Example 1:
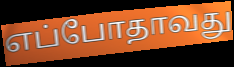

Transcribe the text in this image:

எப்போதாவது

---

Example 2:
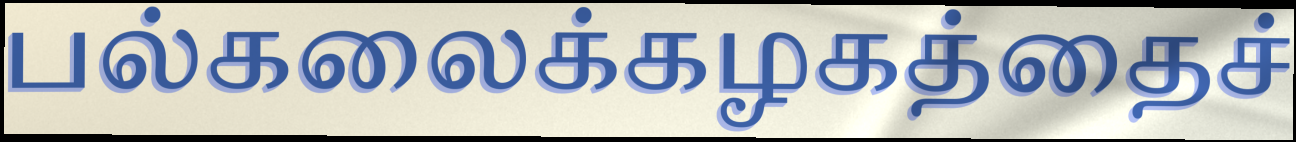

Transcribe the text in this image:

பல்கலைக்கழகத்தைச்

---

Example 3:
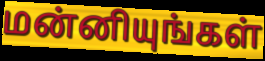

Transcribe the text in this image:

மன்னியுங்கள்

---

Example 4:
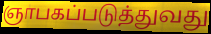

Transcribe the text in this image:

ஞாபகப்படுத்துவது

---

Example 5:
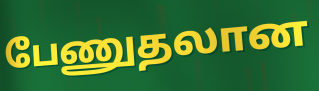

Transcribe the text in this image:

பேணுதலான